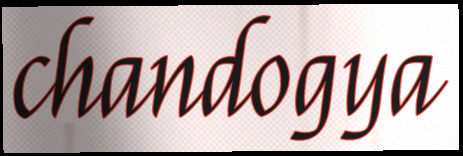
chandogya